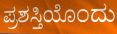
ಪ್ರಶಸ್ತಿಯೊಂದು